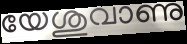
യേശുവാണു